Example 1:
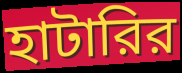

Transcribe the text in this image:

হাটারির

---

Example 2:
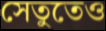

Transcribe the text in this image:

সেতুতেও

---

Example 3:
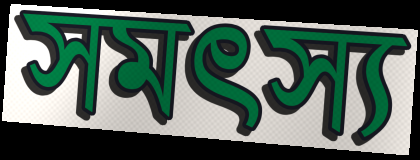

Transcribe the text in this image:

সমৎস্য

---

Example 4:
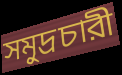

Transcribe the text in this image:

সমুদ্রচারী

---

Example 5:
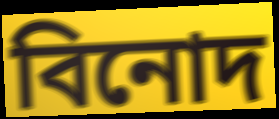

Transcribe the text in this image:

বিনোদ